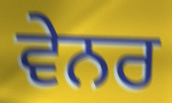
ਵੇਨਰ